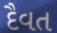
દૈવત